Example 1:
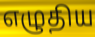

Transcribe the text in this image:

எழுதிய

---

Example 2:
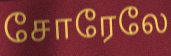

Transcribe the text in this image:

சோரேலே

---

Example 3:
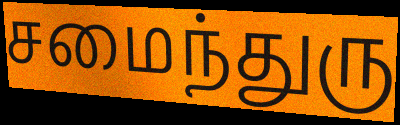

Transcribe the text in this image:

சமைந்துரு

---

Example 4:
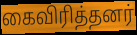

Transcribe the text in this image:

கைவிரித்தனர்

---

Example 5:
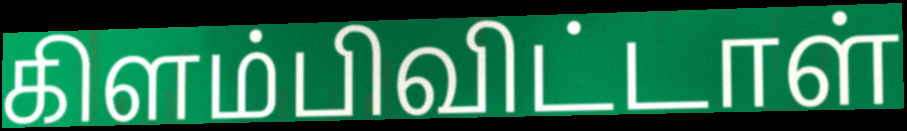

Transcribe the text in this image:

கிளம்பிவிட்டாள்